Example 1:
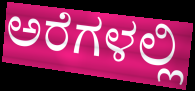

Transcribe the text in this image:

ಅರೆಗಳಲ್ಲಿ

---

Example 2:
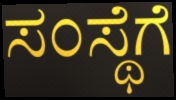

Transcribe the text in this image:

ಸಂಸ್ಥೆಗೆ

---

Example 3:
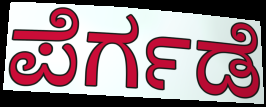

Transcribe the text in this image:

ಪೆರ್ಗಡೆ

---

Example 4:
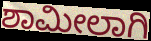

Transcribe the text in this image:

ಶಾಮೀಲಾಗಿ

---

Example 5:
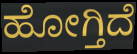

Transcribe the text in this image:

ಹೋಗ್ತಿದೆ